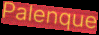
Palenque